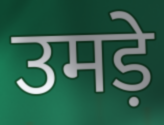
उमड़े